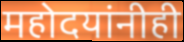
महोदयांनीही